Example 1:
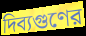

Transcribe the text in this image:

দিব্যগুণের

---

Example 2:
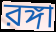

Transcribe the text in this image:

রঙ্গা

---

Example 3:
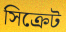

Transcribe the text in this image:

সিক্রেট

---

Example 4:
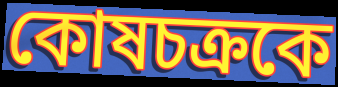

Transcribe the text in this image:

কোষচক্রকে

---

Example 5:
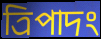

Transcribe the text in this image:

ত্রিপাদং